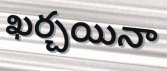
ఖర్చయినా